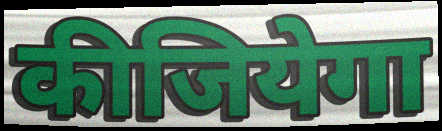
कीजियेगा